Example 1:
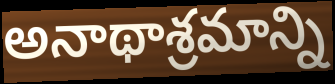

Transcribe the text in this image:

అనాథాశ్రమాన్ని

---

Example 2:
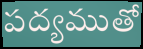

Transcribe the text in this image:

పద్యముతో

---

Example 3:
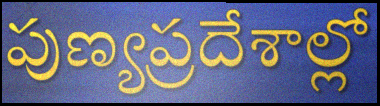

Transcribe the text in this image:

పుణ్యప్రదేశాల్లో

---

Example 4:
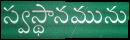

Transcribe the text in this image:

స్వస్థానమును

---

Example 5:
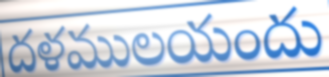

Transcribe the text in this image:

దళములయందు